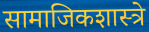
सामाजिकशास्त्रे